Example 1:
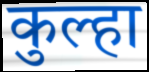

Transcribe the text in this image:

कुल्हा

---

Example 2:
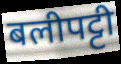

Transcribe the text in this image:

बलीपट्टी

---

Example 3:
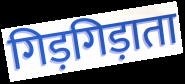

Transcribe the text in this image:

गिड़गिड़ाता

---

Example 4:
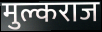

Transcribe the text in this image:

मुल्कराज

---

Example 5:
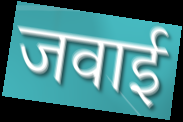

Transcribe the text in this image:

जवाई